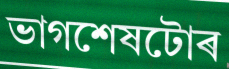
ভাগশেষটোৰ